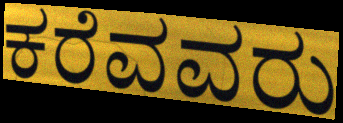
ಕರೆವವರು